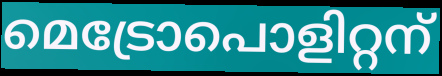
മെട്രോപൊളിറ്റന്